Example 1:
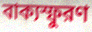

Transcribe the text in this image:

বাক্যস্ফুরণ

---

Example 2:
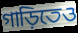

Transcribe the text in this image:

গাড়িতেও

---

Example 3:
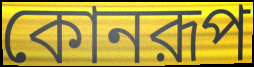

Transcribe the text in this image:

কোনরূপ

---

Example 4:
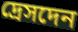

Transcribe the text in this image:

দ্রেসদেন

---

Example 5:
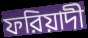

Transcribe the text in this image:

ফরিয়াদী